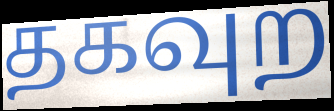
தகவுற